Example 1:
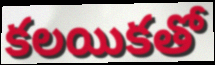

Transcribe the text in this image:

కలయికతో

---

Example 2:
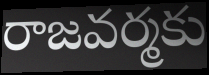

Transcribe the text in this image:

రాజవర్మకు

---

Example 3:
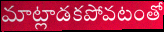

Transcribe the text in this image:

మాట్లాడకపోవటంతో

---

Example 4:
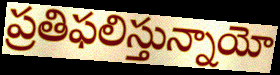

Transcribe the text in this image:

ప్రతిఫలిస్తున్నాయో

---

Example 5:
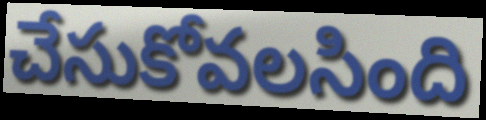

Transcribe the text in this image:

చేసుకోవలసింది